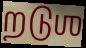
றடுஶ